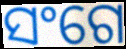
ସଂଗେ